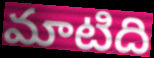
మాటిది